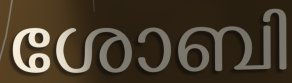
ശോബി